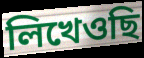
লিখেওছি